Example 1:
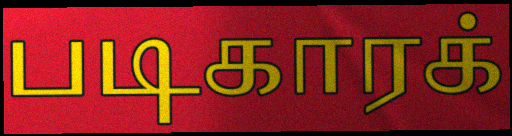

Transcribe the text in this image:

படிகாரக்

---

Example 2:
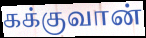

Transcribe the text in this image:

கக்குவான்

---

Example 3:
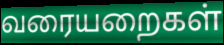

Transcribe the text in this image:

வரையறைகள்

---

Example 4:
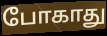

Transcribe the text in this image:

போகாது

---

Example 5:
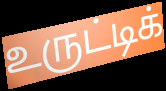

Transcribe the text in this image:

உருட்டிக்